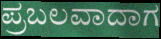
ಪ್ರಬಲವಾದಾಗ